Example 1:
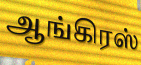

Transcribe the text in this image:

ஆங்கிரஸ்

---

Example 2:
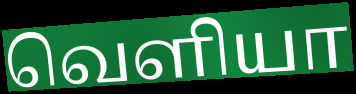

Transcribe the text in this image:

வெளியா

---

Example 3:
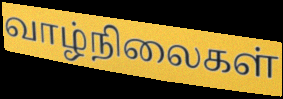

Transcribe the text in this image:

வாழ்நிலைகள்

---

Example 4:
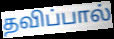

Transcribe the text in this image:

தவிப்பால்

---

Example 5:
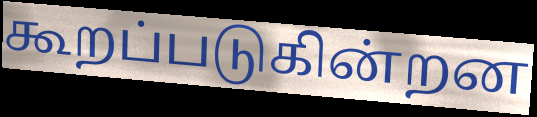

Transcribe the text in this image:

கூறப்படுகின்றன